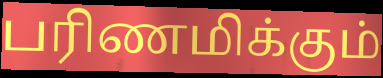
பரிணமிக்கும்